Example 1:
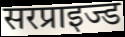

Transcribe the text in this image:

सरप्राइज्ड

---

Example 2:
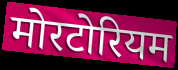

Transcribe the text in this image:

मोरटोरियम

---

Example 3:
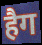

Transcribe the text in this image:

हैग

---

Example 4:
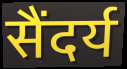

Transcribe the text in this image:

सैंदर्य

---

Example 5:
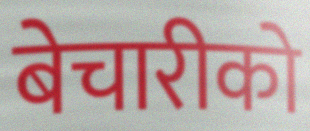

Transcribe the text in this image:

बेचारीको